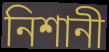
নিশানী